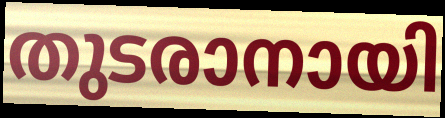
തുടരാനായി